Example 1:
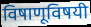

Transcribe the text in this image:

विषाणूविषयी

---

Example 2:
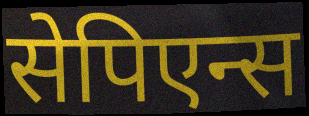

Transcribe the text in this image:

सेपिएन्स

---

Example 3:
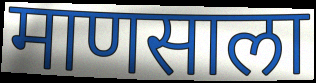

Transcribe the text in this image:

माणसाला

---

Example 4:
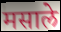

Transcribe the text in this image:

मसाले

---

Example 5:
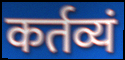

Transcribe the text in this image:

कर्तव्यं